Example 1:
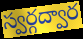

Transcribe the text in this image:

స్వర్గద్వార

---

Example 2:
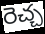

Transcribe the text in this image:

రెచ్చ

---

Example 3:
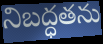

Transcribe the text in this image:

నిబద్ధతను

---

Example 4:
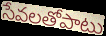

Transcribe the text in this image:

సేవలతోపాటు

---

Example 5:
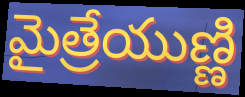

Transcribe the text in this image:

మైత్రేయుణ్ణి